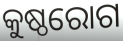
କୁଷ୍ଠରୋଗ